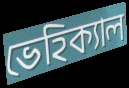
ভেহিক্যাল